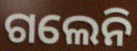
ଗଲେନି